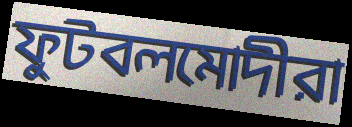
ফুটবলমোদীরা